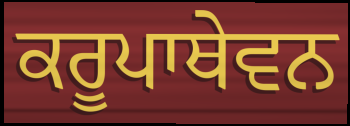
ਕਰੂਪਾਥੇਵਨ